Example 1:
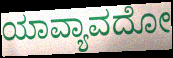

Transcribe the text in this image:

ಯಾವ್ಯಾವದೋ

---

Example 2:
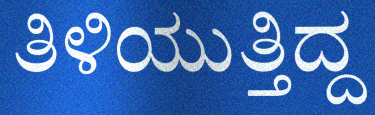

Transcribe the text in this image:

ತಿಳಿಯುತ್ತಿದ್ದ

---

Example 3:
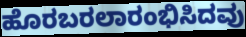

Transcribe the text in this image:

ಹೊರಬರಲಾರಂಭಿಸಿದವು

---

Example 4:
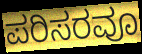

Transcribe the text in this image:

ಪರಿಸರವೂ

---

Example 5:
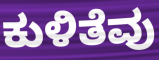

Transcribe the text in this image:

ಕುಳಿತೆವು